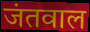
जंतवाल